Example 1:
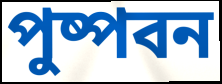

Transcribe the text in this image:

পুষ্পবন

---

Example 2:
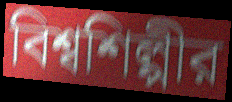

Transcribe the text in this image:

বিশ্বশিল্পীর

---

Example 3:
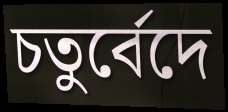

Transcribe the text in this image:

চতুর্বেদে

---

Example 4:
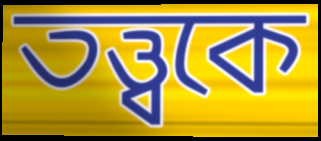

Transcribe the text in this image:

তত্ত্বকে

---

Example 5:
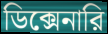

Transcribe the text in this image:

ডিক্সেনারি